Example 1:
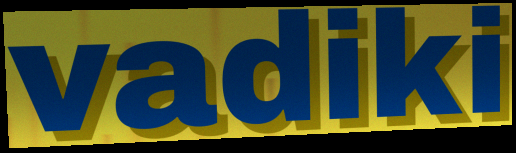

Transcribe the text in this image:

vadiki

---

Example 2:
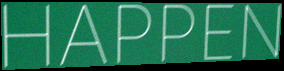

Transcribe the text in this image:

HAPPEN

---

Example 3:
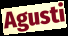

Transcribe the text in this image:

Agusti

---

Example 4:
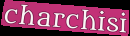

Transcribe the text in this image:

charchisi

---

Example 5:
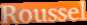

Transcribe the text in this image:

Roussel